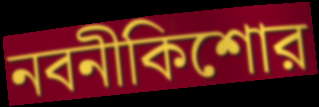
নবনীকিশোর